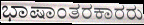
ಭಾಷಾಂತರಕಾರರು